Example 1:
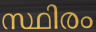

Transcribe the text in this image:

സ്ഥിരം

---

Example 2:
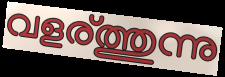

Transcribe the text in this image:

വളര്ത്തുന്നു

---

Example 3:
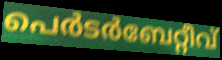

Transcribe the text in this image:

പെർടർബേറ്റീവ്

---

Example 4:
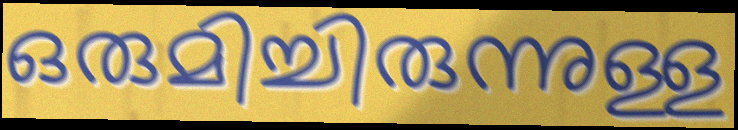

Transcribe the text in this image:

ഒരുമിച്ചിരുന്നുള്ള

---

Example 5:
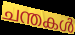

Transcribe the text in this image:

ചന്തകൾ